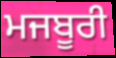
ਮਜਬੂਰੀ